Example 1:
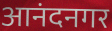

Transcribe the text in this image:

आनंदनगर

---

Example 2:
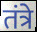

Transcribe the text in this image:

तंत्रे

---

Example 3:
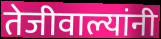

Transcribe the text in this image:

तेजीवाल्यांनी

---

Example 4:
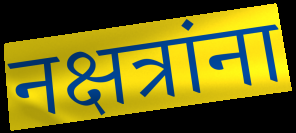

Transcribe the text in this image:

नक्षत्रांना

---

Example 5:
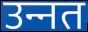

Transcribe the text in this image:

उन्‍नत